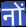
नों